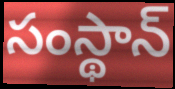
సంస్థాన్